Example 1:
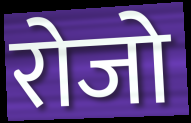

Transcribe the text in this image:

रोजो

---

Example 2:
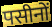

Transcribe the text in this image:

पसीनों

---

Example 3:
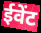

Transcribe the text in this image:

ईवेंट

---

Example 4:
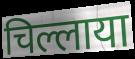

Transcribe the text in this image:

चिल्लाया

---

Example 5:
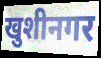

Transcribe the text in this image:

खुशीनगर